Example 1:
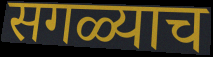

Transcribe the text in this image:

सगळ्याच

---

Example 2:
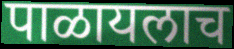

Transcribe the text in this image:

पाळायलाच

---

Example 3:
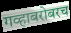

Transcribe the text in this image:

गव्हाबरोबरच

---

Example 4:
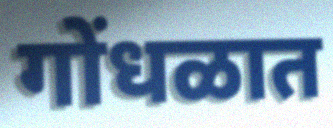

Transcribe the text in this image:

गोंधळात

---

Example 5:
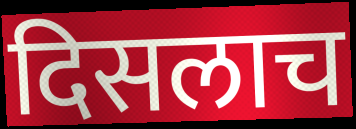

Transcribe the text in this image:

दिसलाच